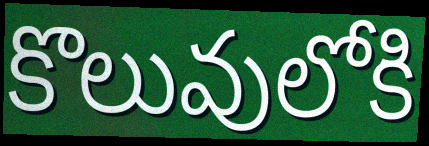
కొలువులోకి